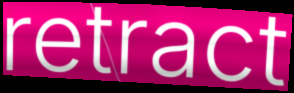
retract